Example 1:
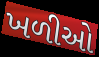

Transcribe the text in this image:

ખળીઓ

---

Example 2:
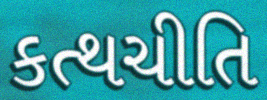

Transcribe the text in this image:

કત્થચીતિ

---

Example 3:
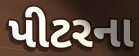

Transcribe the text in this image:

પીટરના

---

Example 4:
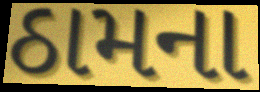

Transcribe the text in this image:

ઠામના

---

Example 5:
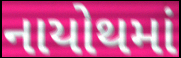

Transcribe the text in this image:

નાયોથમાં